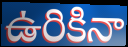
ఉరికినా